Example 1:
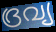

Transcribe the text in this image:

ദ്രവ്യ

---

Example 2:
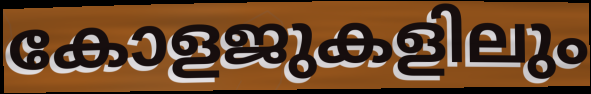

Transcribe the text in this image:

കോളജുകളിലും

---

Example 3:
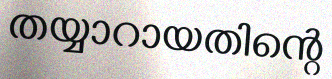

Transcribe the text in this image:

തയ്യാറായതിന്റെ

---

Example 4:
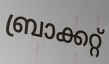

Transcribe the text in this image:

ബ്രാക്കറ്റ്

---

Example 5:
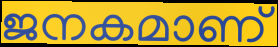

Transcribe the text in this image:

ജനകമാണ്